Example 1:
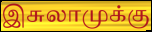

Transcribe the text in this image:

இசுலாமுக்கு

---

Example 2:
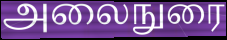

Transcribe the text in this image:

அலைநுரை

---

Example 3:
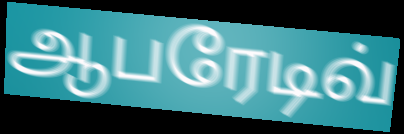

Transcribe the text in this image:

ஆபரேடிவ்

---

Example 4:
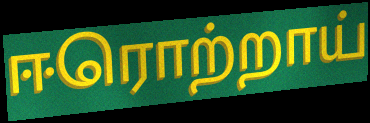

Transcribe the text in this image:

ஈரொற்றாய்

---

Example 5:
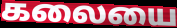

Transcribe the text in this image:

கலையை